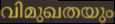
വിമുഖതയും